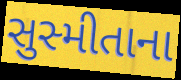
સુસ્મીતાના